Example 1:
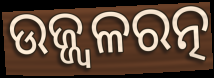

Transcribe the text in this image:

ଉଜ୍ଜ୍ୱଳରତ୍ନ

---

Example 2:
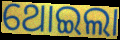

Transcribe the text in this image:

ଥୋଇଲା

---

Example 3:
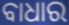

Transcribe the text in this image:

ବାଧାର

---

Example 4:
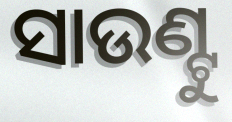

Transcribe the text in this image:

ସାଉଣ୍ଟୁ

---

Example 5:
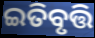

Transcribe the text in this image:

ଇତିବୃତ୍ତି